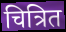
चित्रित